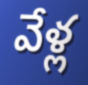
వేళ్ల